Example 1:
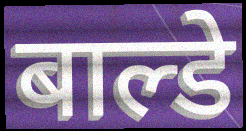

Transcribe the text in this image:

बाल्डे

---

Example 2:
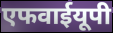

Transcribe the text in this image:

एफवाईयूपी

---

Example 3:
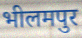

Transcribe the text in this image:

भीलमपुर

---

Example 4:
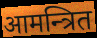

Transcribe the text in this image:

आमन्त्रित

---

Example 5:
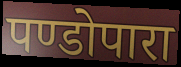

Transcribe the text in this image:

पण्डोपारा